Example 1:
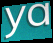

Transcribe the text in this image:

ya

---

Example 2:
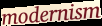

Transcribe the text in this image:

modernism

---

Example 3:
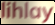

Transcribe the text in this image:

lihlay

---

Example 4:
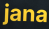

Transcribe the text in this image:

jana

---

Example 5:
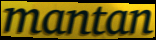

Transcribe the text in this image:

mantan